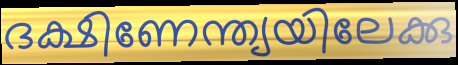
ദക്ഷിണേന്ത്യയിലേക്കു